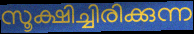
സൂക്ഷിച്ചിരിക്കുന്ന